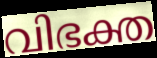
വിഭക്ത